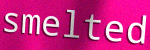
smelted